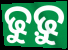
ଢୁଢ଼ୁ